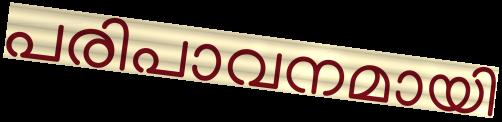
പരിപാവനമായി